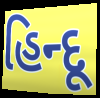
હિન્દૂ